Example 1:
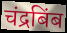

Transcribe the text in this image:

चंद्रबिंब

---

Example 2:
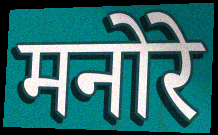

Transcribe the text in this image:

मनोरे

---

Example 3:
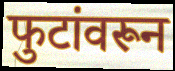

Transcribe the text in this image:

फुटांवरून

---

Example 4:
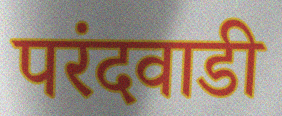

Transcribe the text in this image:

परंदवाडी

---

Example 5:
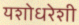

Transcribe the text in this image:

यशोधरेशी